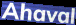
Ahaval